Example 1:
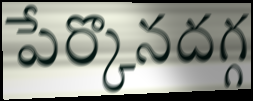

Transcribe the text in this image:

పేర్కొనదగ్గ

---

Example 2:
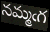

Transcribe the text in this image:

నమ్మఁగ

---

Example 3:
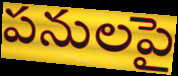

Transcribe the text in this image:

పనులపై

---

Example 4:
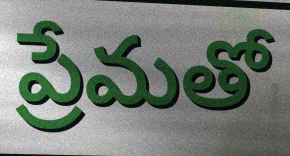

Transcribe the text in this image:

ప్రేమతో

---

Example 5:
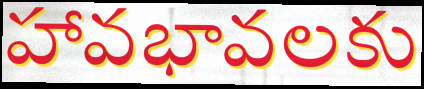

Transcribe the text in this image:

హావభావలకు